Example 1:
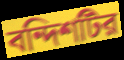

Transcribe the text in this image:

বন্দিশটির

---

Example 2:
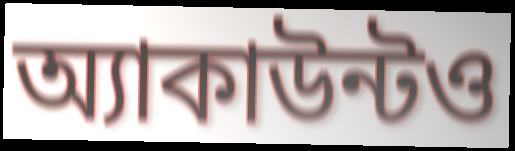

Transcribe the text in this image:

অ্যাকাউন্টও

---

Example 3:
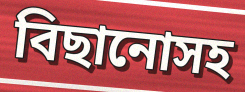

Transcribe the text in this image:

বিছানোসহ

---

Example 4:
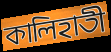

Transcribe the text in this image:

কালিহাতী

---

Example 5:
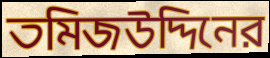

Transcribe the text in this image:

তমিজউদ্দিনের